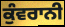
ਕੁੰਵਰਾਨੀ